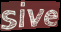
sive